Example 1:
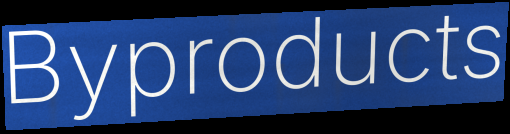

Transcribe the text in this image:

Byproducts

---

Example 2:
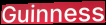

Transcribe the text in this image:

Guinness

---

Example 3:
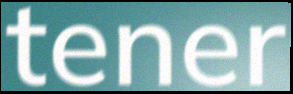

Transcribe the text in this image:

tener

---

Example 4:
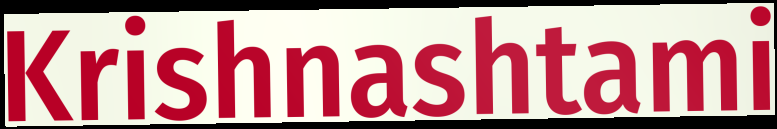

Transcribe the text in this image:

Krishnashtami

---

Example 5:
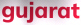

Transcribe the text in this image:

gujarat